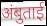
अंबुताई